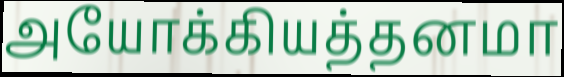
அயோக்கியத்தனமா